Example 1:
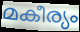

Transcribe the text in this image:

മകീര്യം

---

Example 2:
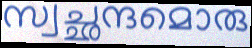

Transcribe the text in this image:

സ്വച്ഛന്ദമൊരു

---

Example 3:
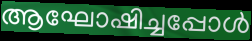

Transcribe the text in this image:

ആഘോഷിച്ചപ്പോൾ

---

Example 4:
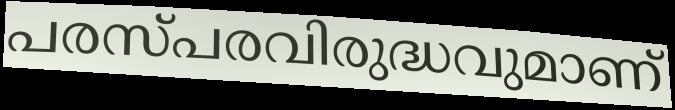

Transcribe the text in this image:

പരസ്പരവിരുദ്ധവുമാണ്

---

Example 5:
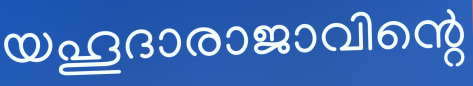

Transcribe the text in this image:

യഹൂദാരാജാവിന്റെ